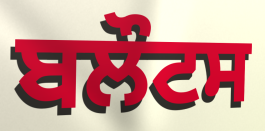
ਬਲੌਟਸ